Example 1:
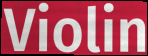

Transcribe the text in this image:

Violin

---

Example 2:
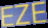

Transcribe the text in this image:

EZE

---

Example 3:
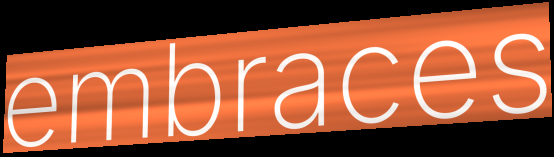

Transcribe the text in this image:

embraces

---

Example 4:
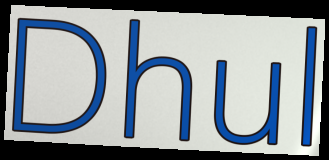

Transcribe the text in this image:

Dhul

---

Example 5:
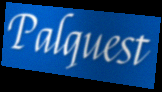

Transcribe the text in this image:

Palquest